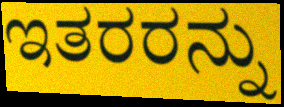
ಇತರರನ್ನು